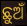
ଛୁଅଁ